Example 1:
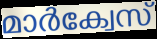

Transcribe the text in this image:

മാർക്വേസ്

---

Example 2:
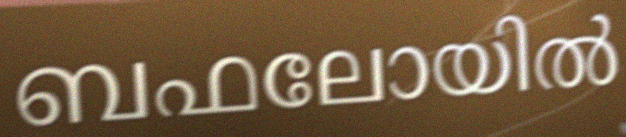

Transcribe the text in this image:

ബഫലോയിൽ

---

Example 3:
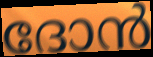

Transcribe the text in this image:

ദോൻ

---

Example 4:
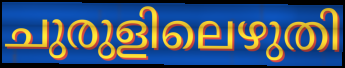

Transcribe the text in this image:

ചുരുളിലെഴുതി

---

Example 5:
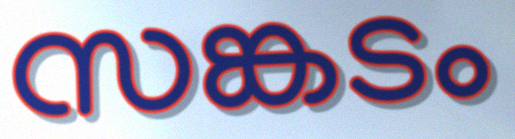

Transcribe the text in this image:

സങ്കടം